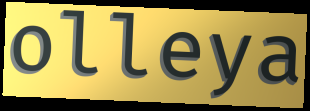
olleya